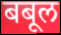
बबूल